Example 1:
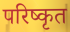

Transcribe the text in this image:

परिष्कृत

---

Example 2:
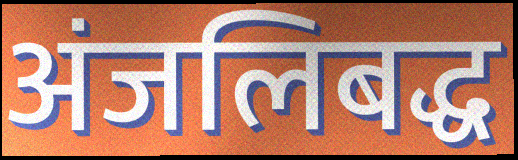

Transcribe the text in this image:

अंजलिबद्ध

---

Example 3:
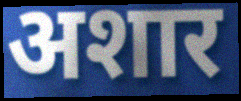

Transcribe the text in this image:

अशार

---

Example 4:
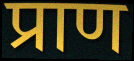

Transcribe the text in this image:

प्राण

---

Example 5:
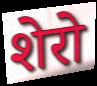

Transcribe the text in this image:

शेरो